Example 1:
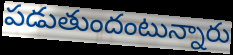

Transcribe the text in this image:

పడుతుందంటున్నారు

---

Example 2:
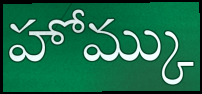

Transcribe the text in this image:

హోమ్కు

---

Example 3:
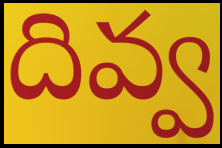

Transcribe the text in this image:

దివ్వ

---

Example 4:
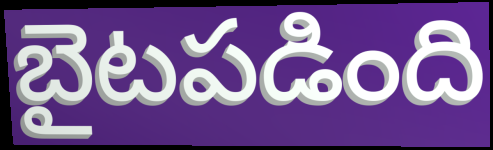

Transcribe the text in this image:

బైటపడింది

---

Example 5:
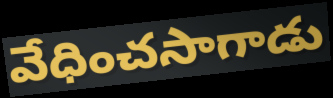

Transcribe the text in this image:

వేధించసాగాడు